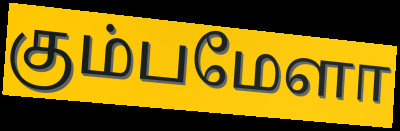
கும்பமேளா